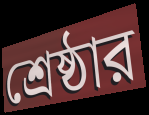
শ্রেষ্ঠার